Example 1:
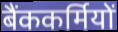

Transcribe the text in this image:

बैंककर्मियों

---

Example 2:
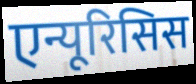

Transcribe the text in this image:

एन्यूरिसिस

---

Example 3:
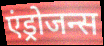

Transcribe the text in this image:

एंड्रोजन्स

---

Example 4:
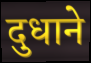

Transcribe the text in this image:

दुधाने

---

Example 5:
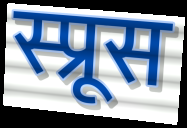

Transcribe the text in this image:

स्प्रूस